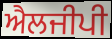
ਐਲਜੀਪੀ